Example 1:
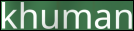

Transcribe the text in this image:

khuman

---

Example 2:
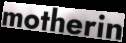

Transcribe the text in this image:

motherin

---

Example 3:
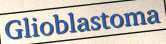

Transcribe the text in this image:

Glioblastoma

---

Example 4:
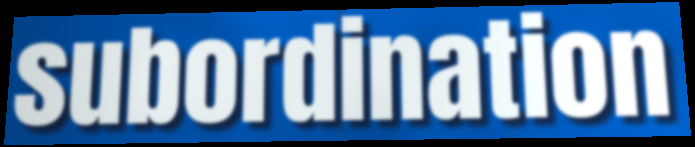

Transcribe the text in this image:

subordination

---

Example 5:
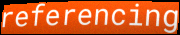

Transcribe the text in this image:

referencing